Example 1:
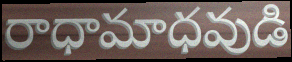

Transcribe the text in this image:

రాధామాధవుడి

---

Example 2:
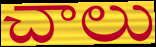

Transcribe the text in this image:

చాలు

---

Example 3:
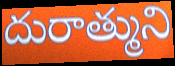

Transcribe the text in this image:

దురాత్ముని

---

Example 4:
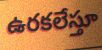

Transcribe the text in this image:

ఉరకలేస్తూ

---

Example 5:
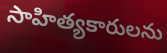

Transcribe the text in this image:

సాహిత్యకారులను